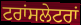
ਟਰਾਂਸਲੇਟਰਾਂ